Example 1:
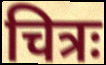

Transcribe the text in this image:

चित्रः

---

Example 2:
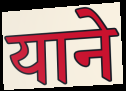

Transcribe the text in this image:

याने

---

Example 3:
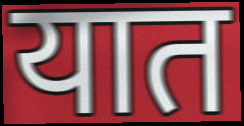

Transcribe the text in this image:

यात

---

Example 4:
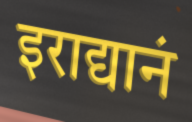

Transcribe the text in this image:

इराद्यानं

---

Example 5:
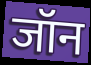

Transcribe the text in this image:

जॉन